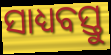
ସାଧ୍ୟବସ୍ତୁ